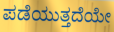
ಪಡೆಯುತ್ತದೆಯೇ